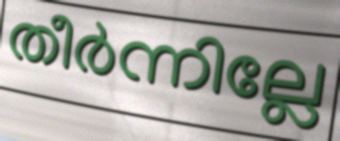
തീർന്നില്ലേ